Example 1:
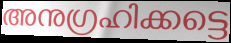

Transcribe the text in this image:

അനുഗ്രഹിക്കട്ടെ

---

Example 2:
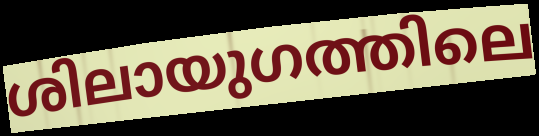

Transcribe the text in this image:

ശിലായുഗത്തിലെ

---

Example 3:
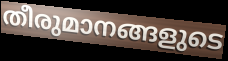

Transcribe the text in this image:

തീരുമാനങ്ങളുടെ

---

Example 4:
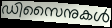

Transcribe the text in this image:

ഡിസൈനുകൾ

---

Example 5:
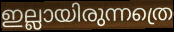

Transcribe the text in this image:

ഇല്ലായിരുന്നത്രെ